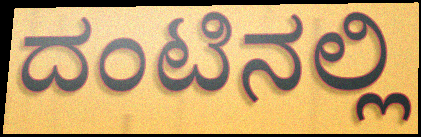
ದಂಟಿನಲ್ಲಿ